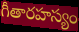
గీతారహస్యం